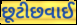
છૂટીછવાઈ